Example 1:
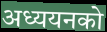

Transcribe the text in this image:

अध्ययनको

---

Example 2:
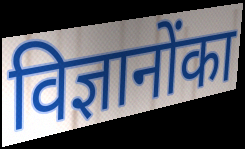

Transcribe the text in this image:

विज्ञानोंका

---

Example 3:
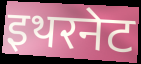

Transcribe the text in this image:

इथरनेट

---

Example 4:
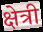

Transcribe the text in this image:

क्षेत्री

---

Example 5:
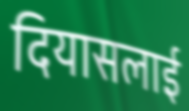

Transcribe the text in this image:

दियासलाई